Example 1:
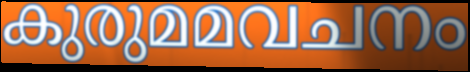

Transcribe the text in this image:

കുരുമമവചനം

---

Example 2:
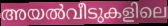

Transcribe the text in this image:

അയൽവീടുകളിലെ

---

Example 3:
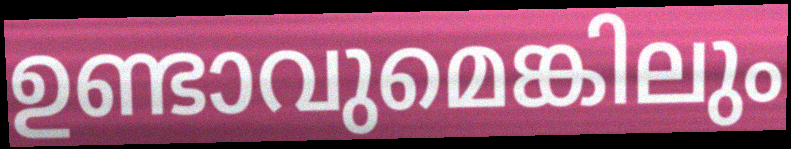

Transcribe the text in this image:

ഉണ്ടാവുമെങ്കിലും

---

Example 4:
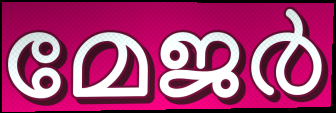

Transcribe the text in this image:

മേജർ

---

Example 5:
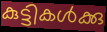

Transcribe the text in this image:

കുട്ടികൾക്കു